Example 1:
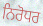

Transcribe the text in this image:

ਨਿਰੋਧਰ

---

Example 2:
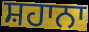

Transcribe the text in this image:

ਸ਼ਹਾਨਾ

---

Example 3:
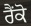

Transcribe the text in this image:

ਰੈਂਕੋ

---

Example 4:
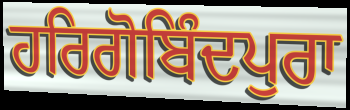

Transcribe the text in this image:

ਹਰਿਗੋਬਿੰਦਪੁਰਾ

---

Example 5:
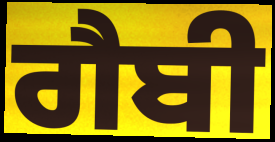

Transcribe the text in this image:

ਗੈਬੀ